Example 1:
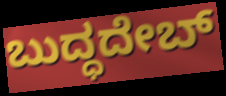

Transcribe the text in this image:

ಬುದ್ಧದೇಬ್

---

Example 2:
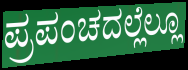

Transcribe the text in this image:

ಪ್ರಪಂಚದಲ್ಲೆಲ್ಲೂ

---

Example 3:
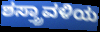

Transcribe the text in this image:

ಶಸ್ತ್ರಾವಳಿಯ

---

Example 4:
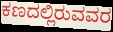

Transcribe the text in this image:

ಕಣದಲ್ಲಿರುವವರ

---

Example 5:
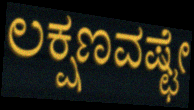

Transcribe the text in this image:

ಲಕ್ಷಣವಷ್ಟೇ